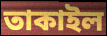
তাকাইল